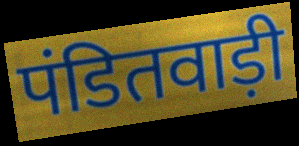
पंडितवाड़ी